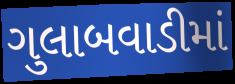
ગુલાબવાડીમાં